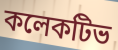
কলেকটিভ